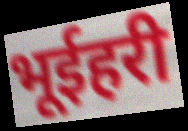
भूईहरी